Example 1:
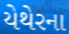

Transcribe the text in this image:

યેથેરના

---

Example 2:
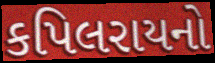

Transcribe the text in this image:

કપિલરાયનો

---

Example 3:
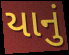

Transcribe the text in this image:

યાનું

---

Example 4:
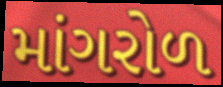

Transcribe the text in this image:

માંગરોળ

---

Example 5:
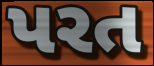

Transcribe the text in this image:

પરત